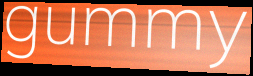
gummy